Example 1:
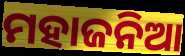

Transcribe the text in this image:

ମହାଜନିଆ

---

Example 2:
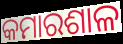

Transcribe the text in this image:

କମାରଶାଳ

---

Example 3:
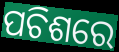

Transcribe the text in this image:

ପଚିଶରେ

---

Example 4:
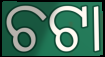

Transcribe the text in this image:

ଚଟା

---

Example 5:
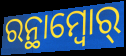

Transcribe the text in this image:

ରନ୍ଥାମ୍ବୋର୍